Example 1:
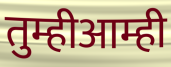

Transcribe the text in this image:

तुम्हीआम्ही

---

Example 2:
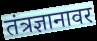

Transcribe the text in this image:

तंत्रज्ञानावर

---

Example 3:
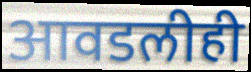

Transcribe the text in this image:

आवडलीही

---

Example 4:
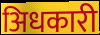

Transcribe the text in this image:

अिधकारी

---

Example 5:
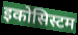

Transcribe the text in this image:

इकोसिस्टम